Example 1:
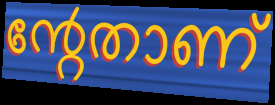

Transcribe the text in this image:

ന്റേതാണ്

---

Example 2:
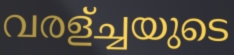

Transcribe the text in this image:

വരള്ച്ചയുടെ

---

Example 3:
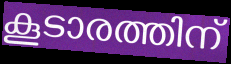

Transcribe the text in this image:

കൂടാരത്തിന്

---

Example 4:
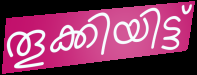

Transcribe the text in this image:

തൂക്കിയിട്ട്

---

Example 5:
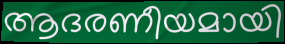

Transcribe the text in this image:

ആദരണീയമായി